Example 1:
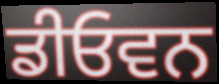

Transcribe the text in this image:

ਡੀਓਵਨ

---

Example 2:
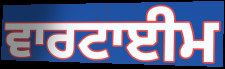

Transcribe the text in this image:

ਵਾਰਟਾਈਮ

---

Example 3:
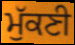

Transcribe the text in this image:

ਮੁੱਕਣੀ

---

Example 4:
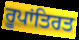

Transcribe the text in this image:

ਰੂਪਾਂਤਿਰਤ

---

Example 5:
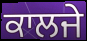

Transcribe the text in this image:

ਕਾਲਜੇ